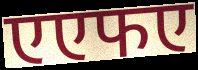
एएफए